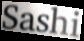
Sashi